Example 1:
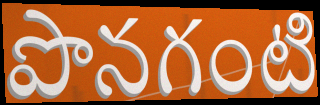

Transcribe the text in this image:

పొనగంటి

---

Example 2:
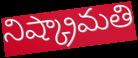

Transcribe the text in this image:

నిష్క్రామతి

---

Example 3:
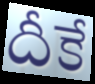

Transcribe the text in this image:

దీకే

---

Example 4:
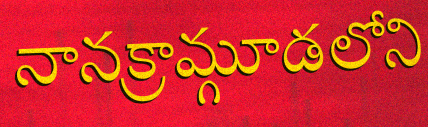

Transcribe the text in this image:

నానక్రామ్గూడలోని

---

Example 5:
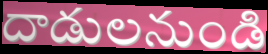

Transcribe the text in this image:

దాడులనుండి